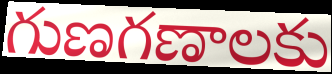
గుణగణాలకు